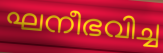
ഘനീഭവിച്ച